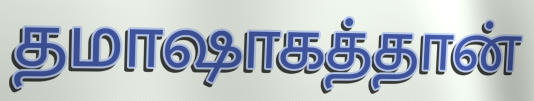
தமாஷாகத்தான்